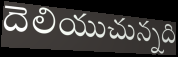
దెలియుచున్నది